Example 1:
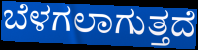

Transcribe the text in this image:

ಬೆಳಗಲಾಗುತ್ತದೆ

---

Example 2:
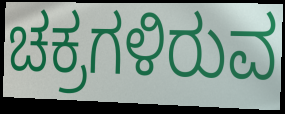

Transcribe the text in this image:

ಚಕ್ರಗಳಿರುವ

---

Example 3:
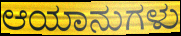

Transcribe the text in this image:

ಆಯಾನುಗಳು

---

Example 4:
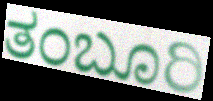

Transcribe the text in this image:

ತಂಬೂರಿ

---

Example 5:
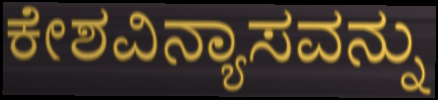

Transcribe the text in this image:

ಕೇಶವಿನ್ಯಾಸವನ್ನು